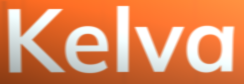
Kelva